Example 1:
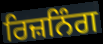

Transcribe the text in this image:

ਰਿਜ਼ਨਿੰਗ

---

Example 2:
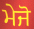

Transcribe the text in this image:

ਮੇਜੋ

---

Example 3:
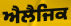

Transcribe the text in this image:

ਐਲੈਜਿਕ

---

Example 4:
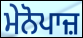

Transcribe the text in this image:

ਮੇਨੋਪਾਜ਼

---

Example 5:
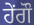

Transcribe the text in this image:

ਹੇਂਗੌ